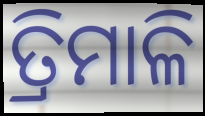
ତ୍ରିମାଳି